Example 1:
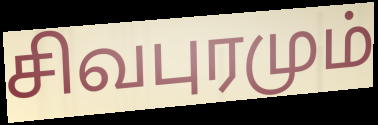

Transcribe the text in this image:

சிவபுரமும்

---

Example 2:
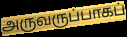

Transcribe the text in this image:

அருவருப்பாகப்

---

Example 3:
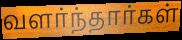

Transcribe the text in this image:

வளர்ந்தார்கள்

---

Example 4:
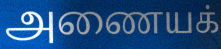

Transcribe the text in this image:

அணையக்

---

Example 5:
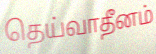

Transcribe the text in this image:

தெய்வாதீனம்